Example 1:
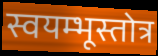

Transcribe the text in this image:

स्वयम्भूस्तोत्र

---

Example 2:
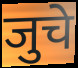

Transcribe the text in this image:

जुचे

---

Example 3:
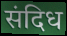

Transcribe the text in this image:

संदिध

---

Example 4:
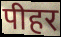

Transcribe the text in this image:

पीहर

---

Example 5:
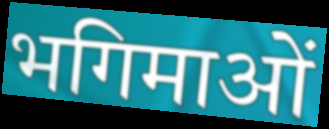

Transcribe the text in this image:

भगिमाओं